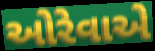
ઓરેવાએ